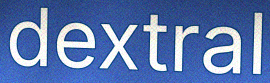
dextral